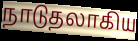
நாடுதலாகிய